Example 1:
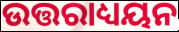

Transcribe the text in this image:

ଉତ୍ତରାଧ୍ୟୟନ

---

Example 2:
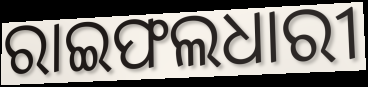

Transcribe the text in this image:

ରାଇଫଲଧାରୀ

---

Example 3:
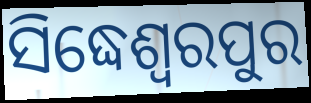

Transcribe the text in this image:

ସିଦ୍ଧେଶ୍ଵରପୁର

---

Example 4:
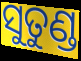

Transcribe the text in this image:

ସୁତୁଣ୍ଡ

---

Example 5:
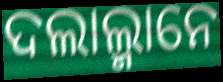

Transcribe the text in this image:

ଦଲାଲ୍ମାନେ